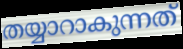
തയ്യാറാകുന്നത്